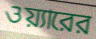
ওয়্যারের